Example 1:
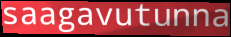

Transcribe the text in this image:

saagavutunna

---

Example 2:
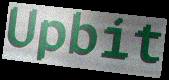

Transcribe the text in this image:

Upbit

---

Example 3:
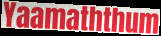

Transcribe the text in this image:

Yaamaththum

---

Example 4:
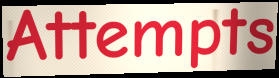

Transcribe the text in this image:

Attempts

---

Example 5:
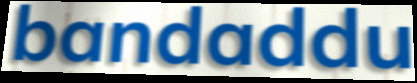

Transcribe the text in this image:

bandaddu